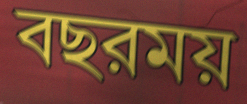
বছরময়